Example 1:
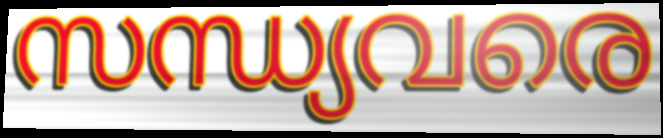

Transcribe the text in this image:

സന്ധ്യവരെ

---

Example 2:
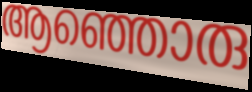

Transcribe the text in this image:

ആഞ്ഞൊരു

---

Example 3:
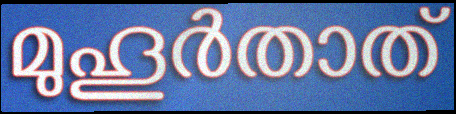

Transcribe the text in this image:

മുഹൂർതാത്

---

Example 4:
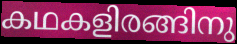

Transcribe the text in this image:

കഥകളിരങ്ങിനു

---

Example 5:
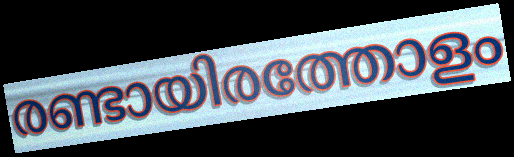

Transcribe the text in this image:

രണ്ടായിരത്തോളം